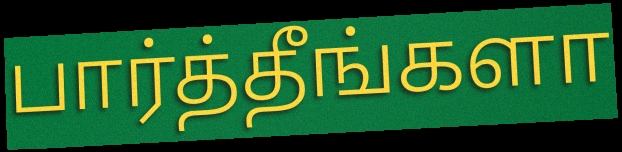
பார்த்தீங்களா